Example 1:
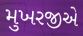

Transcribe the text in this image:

મુખરજીએ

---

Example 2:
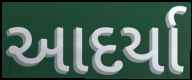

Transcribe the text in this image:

આદર્યા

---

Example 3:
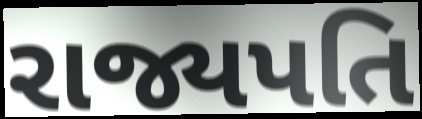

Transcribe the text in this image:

રાજ્યપતિ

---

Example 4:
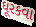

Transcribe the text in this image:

ઘૂરકવા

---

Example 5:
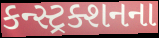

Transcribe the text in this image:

કન્સ્ટ્રક્શનના